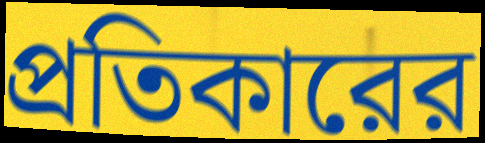
প্রতিকারের